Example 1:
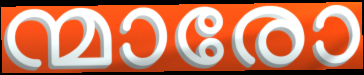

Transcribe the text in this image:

ന്മാരോ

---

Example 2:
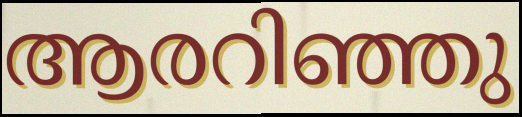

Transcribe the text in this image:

ആരറിഞ്ഞു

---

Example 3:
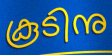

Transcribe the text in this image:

കൂടിനു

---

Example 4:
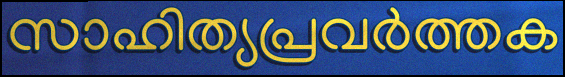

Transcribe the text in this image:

സാഹിത്യപ്രവർത്തക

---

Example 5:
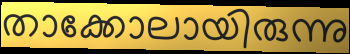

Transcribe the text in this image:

താക്കോലായിരുന്നു